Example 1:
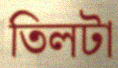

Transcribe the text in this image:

তিলটা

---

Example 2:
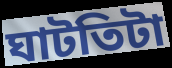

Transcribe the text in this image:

ঘাটতিটা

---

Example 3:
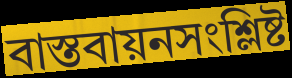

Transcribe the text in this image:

বাস্তবায়নসংশ্লিষ্ট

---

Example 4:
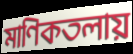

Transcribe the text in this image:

মাণিকতলায়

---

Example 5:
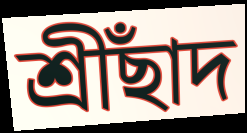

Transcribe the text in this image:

শ্রীছাঁদ